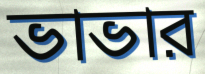
ভাভার